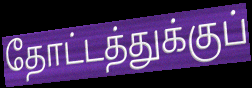
தோட்டத்துக்குப்